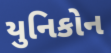
યુનિકોન